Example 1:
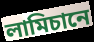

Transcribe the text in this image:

লামিচানে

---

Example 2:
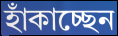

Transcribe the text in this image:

হাঁকাচ্ছেন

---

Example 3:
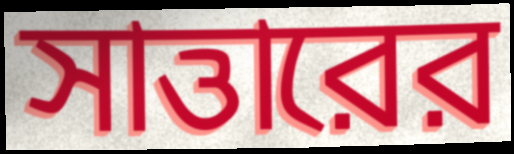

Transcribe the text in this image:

সাত্তারের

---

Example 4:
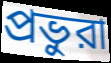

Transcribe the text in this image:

প্রভুরা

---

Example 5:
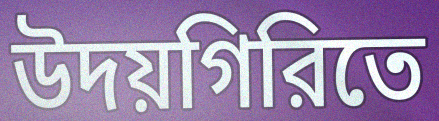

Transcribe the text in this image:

উদয়গিরিতে